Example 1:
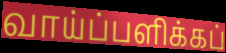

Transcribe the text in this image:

வாய்ப்பளிக்கப்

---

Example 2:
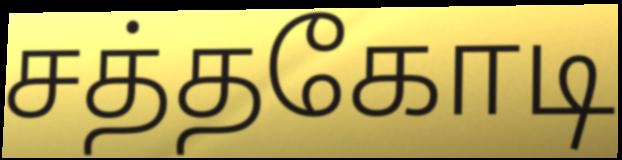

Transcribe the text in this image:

சத்தகோடி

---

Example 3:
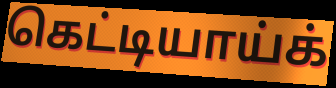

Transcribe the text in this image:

கெட்டியாய்க்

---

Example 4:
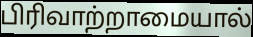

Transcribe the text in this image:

பிரிவாற்றாமையால்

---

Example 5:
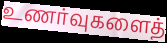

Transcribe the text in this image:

உணர்வுகளைத்